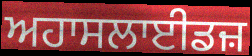
ਅਹਾਸਲਾਈਡਜ਼